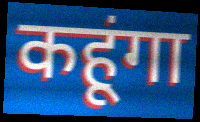
कहूंगा